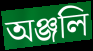
অঞ্জলি